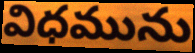
విధమును